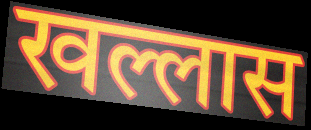
खल्लास